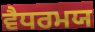
ਵੈਧਰਮਯ